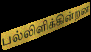
பல்லிளிக்கின்றன